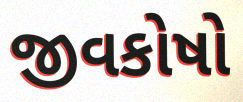
જીવકોષો